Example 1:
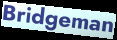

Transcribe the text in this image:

Bridgeman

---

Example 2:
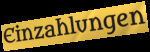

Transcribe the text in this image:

Einzahlungen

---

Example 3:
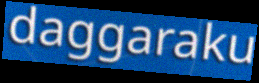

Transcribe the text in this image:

daggaraku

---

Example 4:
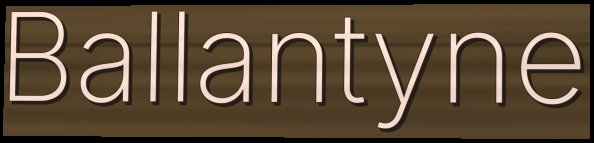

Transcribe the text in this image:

Ballantyne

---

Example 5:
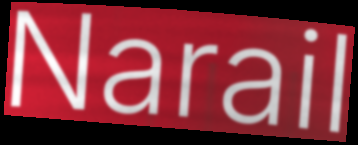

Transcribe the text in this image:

Narail